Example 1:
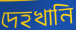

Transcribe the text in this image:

দেহখানি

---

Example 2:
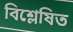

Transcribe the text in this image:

বিশ্লেষিত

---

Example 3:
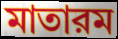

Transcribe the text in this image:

মাতারম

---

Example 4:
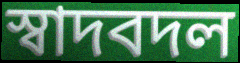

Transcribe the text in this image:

স্বাদবদল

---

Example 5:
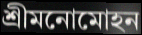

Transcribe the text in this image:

শ্রীমনোমোহন